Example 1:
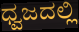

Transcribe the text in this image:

ಧ್ವಜದಲ್ಲಿ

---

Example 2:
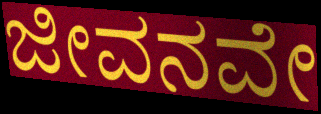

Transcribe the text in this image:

ಜೀವನವೇ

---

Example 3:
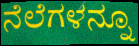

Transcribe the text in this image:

ನೆಲೆಗಳನ್ನೂ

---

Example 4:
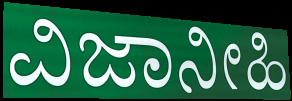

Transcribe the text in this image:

ವಿಜಾನೀಹಿ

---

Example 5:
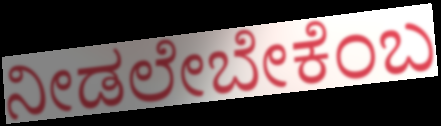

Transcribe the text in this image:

ನೀಡಲೇಬೇಕೆಂಬ